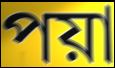
পয়া